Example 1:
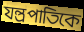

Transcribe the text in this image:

যন্ত্রপাতিকে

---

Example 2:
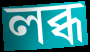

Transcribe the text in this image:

লব্ধ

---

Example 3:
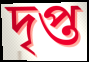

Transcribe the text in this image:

দৃপ্ত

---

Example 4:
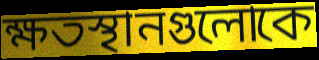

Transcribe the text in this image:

ক্ষতস্থানগুলোকে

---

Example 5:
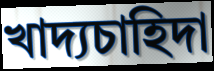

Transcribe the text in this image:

খাদ্যচাহিদা